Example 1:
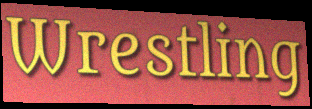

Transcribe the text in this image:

Wrestling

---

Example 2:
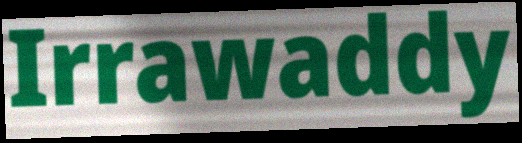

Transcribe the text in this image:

Irrawaddy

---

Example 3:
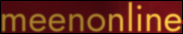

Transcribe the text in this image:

meenonline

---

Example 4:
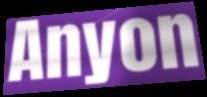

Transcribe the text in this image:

Anyon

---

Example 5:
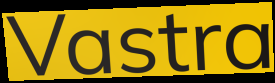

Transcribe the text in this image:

Vastra